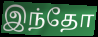
இந்தோ